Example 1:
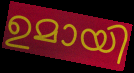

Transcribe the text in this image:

ഉമായി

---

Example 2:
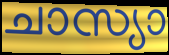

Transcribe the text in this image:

ചാസ്യാ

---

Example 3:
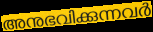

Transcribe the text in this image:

അനുഭവിക്കുന്നവർ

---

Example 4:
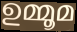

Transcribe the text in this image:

ഉമ്മൂമ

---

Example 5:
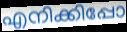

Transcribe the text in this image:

എനിക്കിപ്പോ